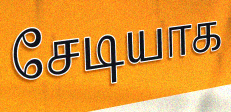
சேடியாக